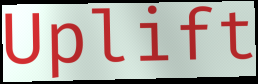
Uplift